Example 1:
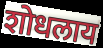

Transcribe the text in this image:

शोधलाय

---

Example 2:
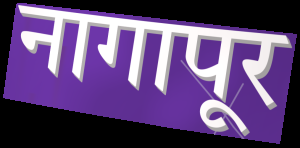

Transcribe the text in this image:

नागापूर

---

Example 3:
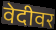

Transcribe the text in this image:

वेदीवर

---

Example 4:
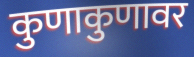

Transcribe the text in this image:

कुणाकुणावर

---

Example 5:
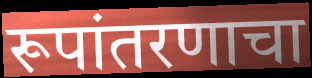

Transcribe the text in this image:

रूपांतरणाचा